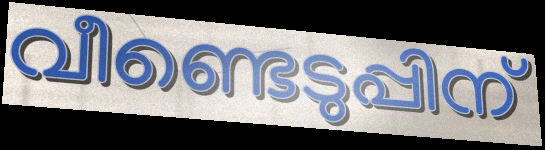
വീണ്ടെടുപ്പിന്